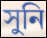
সুনি